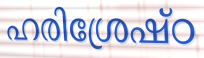
ഹരിശ്രേഷ്ഠ